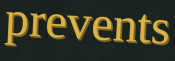
prevents